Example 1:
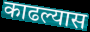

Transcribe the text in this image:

काढल्यास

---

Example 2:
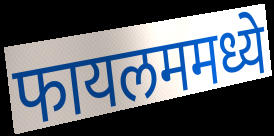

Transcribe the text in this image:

फायलममध्ये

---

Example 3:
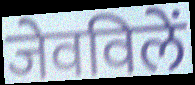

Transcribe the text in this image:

जेवविलें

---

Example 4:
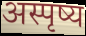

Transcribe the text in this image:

अस्पृष्य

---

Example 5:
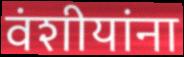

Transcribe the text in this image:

वंशीयांना